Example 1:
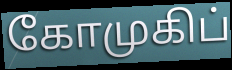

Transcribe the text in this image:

கோமுகிப்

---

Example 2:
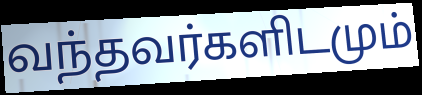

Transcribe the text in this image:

வந்தவர்களிடமும்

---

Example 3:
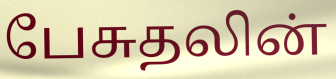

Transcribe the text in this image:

பேசுதலின்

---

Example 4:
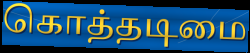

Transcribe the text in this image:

கொத்தடிமை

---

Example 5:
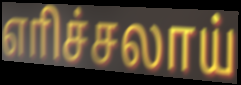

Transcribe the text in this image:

எரிச்சலாய்